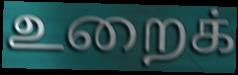
உறைக்